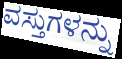
ವಸ್ತುಗಳನ್ನು